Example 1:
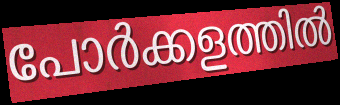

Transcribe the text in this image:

പോർക്കളത്തിൽ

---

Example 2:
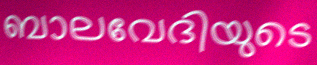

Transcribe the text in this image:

ബാലവേദിയുടെ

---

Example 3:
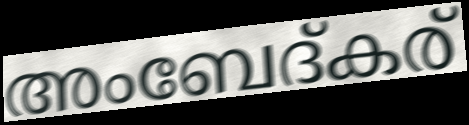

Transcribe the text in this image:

അംബേദ്കര്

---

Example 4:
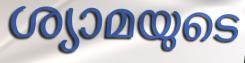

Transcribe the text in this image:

ശ്യാമയുടെ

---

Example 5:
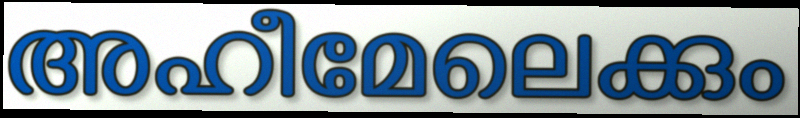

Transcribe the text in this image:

അഹീമേലെക്കും